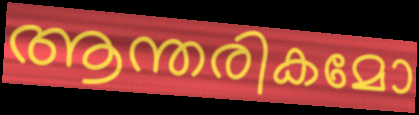
ആന്തരികമോ